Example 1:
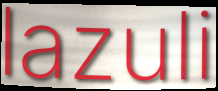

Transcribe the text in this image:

lazuli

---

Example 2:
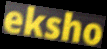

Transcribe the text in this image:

eksho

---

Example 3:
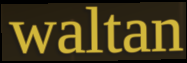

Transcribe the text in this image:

waltan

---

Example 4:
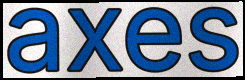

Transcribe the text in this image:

axes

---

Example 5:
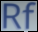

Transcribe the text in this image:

Rf